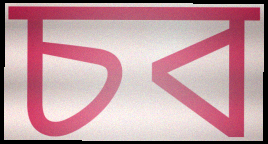
চব